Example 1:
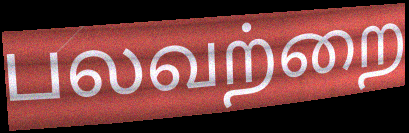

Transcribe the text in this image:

பலவற்றை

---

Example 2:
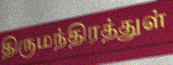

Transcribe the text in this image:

திருமந்திரத்துள்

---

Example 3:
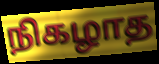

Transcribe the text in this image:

நிகழாத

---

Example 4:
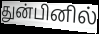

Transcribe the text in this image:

துன்பினில்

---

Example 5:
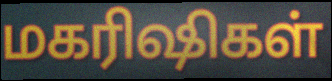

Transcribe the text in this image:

மகரிஷிகள்